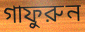
গাফুরুন